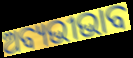
ଅବ୍ୟଭୀଭାବ